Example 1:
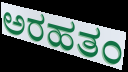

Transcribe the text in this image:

ಅರಹತಂ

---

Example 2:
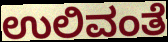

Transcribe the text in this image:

ಉಲಿವಂತೆ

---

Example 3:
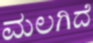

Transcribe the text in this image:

ಮಲಗಿದೆ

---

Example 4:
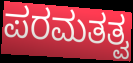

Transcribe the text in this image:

ಪರಮತತ್ವ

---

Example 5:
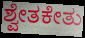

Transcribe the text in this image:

ಶ್ವೇತಕೇತು